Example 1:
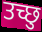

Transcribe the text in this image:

उच्छु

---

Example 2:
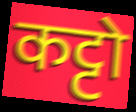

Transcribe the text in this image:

कट्टो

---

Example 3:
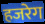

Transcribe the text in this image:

हजरेग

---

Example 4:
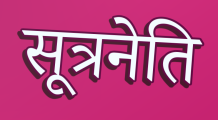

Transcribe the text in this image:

सूत्रनेति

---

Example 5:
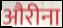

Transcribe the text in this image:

औरीना